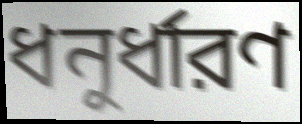
ধনুর্ধারণ